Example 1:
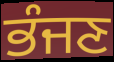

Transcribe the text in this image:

ਭੰਜਣ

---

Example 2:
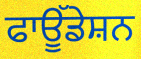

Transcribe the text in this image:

ਫਾਊੱਡੇਸ਼ਨ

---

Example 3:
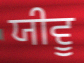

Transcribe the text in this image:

ਯੀਵੂ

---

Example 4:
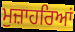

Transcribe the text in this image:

ਮੁਜ਼ਾਹਰਿਆਂ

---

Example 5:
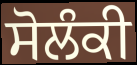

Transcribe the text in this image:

ਸੋਲੰਕੀ